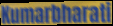
Kumarbharati